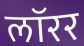
लॉरर